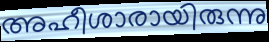
അഹീശാരായിരുന്നു